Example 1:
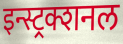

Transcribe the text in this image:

इन्स्ट्रक्शनल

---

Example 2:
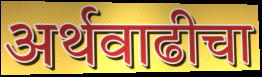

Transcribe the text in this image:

अर्थवाढीचा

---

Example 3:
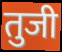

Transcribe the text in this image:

तुजी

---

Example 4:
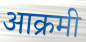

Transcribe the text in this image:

आक्रमी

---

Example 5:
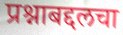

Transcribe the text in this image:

प्रश्नाबद्दलचा